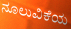
ನೂಲುವಿಕೆಯ